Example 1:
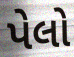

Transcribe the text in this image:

પેલો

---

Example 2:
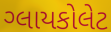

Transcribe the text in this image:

ગ્લાયકોલેટ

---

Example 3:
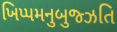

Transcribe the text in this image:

ખિપ્પમનુબુજ્ઝતિ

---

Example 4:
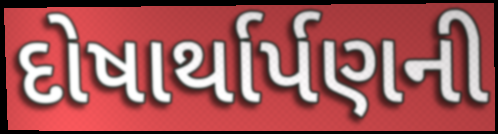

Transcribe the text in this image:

દોષાર્થાર્પણની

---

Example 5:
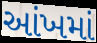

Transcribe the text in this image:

આંખમાં